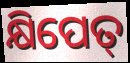
କ୍ଷିପେତ୍